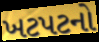
ખટપટનો